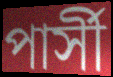
পার্সী